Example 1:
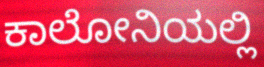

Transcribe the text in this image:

ಕಾಲೋನಿಯಲ್ಲಿ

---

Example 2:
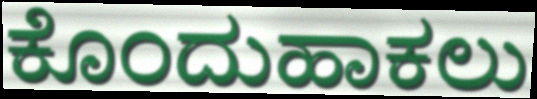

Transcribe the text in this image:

ಕೊಂದುಹಾಕಲು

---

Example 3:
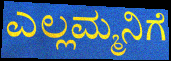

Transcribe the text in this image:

ಎಲ್ಲಮ್ಮನಿಗೆ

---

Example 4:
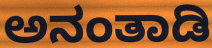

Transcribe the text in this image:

ಅನಂತಾಡಿ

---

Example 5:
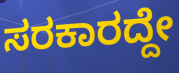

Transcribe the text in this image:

ಸರಕಾರದ್ದೇ